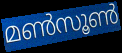
മൺസൂൺ